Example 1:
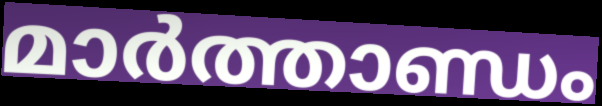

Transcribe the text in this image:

മാർത്താണ്ഡം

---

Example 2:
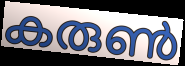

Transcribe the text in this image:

കരുൺ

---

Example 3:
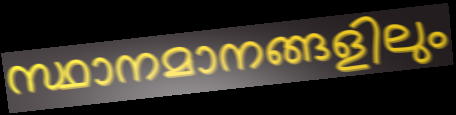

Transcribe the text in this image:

സ്ഥാനമാനങ്ങളിലും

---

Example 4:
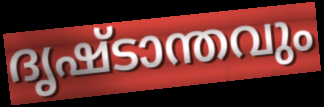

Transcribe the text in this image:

ദൃഷ്ടാന്തവും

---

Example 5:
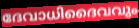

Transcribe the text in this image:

ദേവാധിദൈവവും